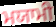
ਮਯਾਮੀ